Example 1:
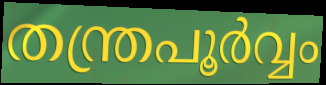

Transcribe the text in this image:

തന്ത്രപൂർവ്വം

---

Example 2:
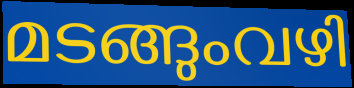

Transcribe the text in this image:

മടങ്ങുംവഴി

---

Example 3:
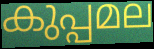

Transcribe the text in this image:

കുപ്പമല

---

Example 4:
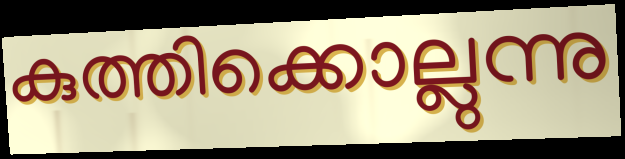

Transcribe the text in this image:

കുത്തിക്കൊല്ലുന്നു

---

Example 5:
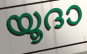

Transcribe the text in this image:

യൂദാ